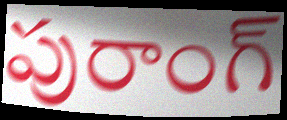
పురాంగ్